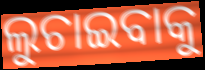
ଲୁଚାଇବାକୁ